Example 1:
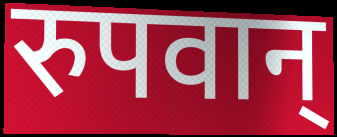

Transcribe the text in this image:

रुपवान्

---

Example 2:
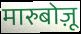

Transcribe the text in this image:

मारुबोज़ू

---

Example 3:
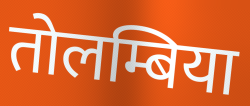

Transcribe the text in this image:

तोलम्बिया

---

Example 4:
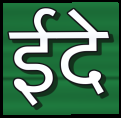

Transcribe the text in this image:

ईदे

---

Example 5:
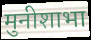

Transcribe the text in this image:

मुनीशाभा